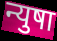
न्युषा